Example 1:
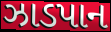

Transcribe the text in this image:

ઝાડપાન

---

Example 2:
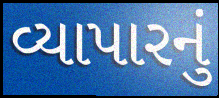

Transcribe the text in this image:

વ્યાપારનું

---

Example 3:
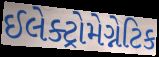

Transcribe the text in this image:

ઈલેક્ટ્રોમેગ્નેટિક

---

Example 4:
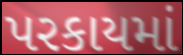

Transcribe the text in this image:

પરકાયમાં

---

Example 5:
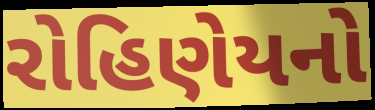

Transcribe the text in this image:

રોહિણેયનો